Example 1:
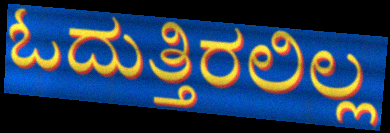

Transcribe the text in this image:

ಓದುತ್ತಿರಲಿಲ್ಲ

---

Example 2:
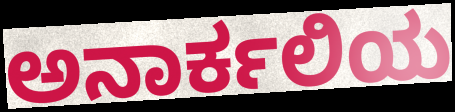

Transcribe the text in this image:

ಅನಾರ್ಕಲಿಯ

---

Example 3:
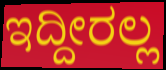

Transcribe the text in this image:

ಇದ್ದೀರಲ್ಲ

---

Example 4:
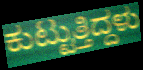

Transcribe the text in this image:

ಕುಟ್ಟುತ್ತಿದ್ದಳು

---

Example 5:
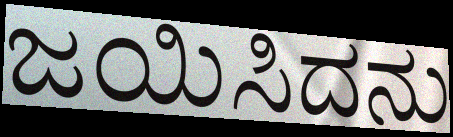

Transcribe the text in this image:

ಜಯಿಸಿದನು